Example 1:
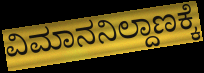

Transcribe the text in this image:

ವಿಮಾನನಿಲ್ದಾಣಕ್ಕೆ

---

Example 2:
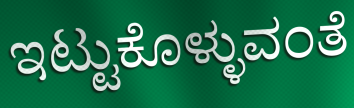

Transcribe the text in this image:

ಇಟ್ಟುಕೊಳ್ಳುವಂತೆ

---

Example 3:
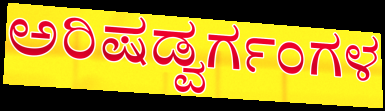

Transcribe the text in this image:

ಅರಿಷಡ್ವರ್ಗಂಗಳ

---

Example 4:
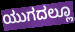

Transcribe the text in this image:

ಯುಗದಲ್ಲೂ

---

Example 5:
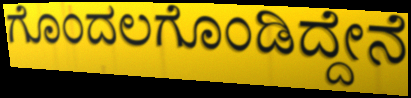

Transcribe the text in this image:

ಗೊಂದಲಗೊಂಡಿದ್ದೇನೆ